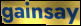
gainsay